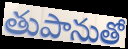
తుపానుతో